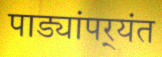
पाड्यांपर्यंत